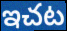
ఇచట